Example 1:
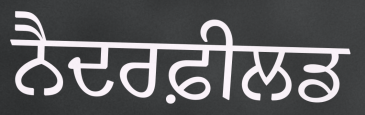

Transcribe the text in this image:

ਨੈਦਰਫ਼ੀਲਡ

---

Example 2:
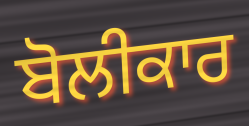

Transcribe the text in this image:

ਬੋਲੀਕਾਰ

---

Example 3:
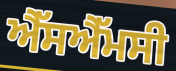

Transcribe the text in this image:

ਐੱਸਐੱਮਸੀ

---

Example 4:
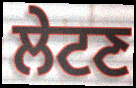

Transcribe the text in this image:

ਲੇਟਣ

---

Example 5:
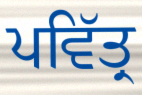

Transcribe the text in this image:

ਪਵਿੱਤ੍ਰ